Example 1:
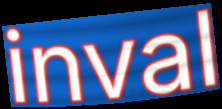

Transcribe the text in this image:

inval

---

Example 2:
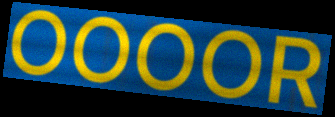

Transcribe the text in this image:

OOOOR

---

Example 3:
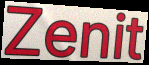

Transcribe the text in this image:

Zenit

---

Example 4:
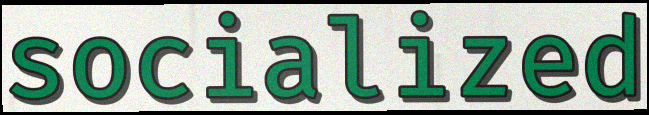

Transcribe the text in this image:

socialized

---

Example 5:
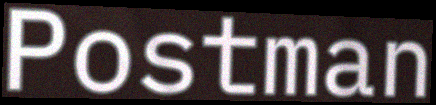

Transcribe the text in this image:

Postman